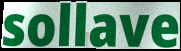
sollave